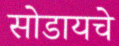
सोडायचे